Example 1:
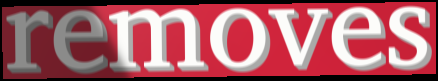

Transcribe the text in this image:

removes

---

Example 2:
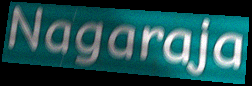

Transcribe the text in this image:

Nagaraja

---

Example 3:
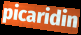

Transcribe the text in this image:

picaridin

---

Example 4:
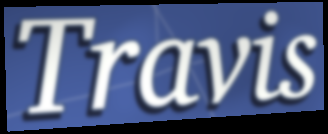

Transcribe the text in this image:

Travis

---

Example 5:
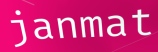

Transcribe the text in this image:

janmat